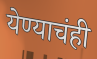
येण्याचंही